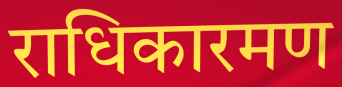
राधिकारमण